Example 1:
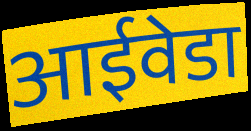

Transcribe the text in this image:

आईवेडा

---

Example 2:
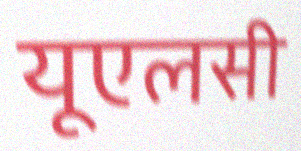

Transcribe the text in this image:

यूएलसी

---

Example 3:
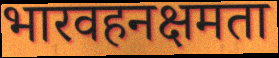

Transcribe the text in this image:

भारवहनक्षमता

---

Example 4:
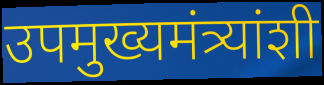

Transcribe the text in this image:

उपमुख्यमंत्र्यांशी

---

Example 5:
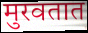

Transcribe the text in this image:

मुरवतात